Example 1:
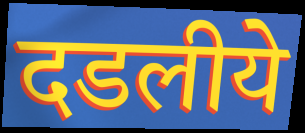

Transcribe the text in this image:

दडलीये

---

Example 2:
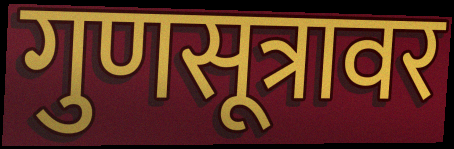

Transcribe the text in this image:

गुणसूत्रावर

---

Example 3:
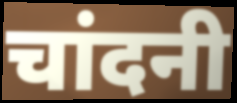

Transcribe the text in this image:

चांदनी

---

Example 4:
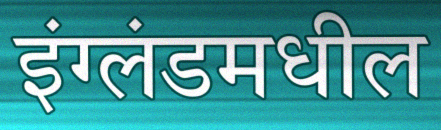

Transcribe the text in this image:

इंग्लंडमधील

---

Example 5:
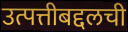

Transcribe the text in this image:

उत्पत्तीबद्दलची